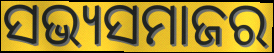
ସଭ୍ୟସମାଜର